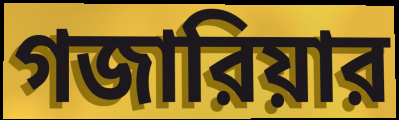
গজারিয়ার